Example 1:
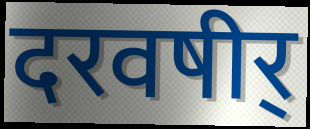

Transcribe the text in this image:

दरवषीर्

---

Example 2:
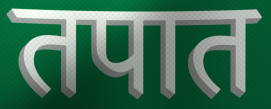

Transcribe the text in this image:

तपात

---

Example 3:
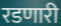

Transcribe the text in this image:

रडणारी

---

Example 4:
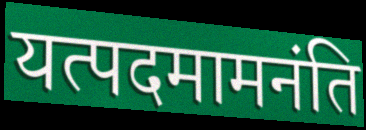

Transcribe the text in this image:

यत्पदमामनंति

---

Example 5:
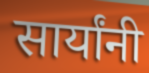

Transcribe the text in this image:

सार्यांनी